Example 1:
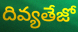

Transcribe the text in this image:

దివ్యతేజో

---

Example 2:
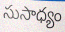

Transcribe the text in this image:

సుసాధ్యం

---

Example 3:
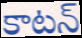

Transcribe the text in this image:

కాటన్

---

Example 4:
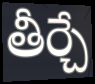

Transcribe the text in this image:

తీర్చే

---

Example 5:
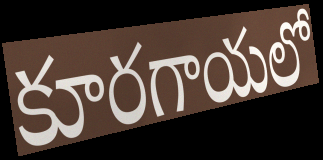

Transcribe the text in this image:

కూరగాయలో